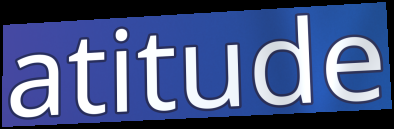
atitude